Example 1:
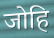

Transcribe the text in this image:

जोहि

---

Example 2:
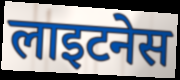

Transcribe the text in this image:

लाइटनेस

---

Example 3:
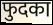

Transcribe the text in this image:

फुदका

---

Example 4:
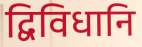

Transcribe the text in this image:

द्विविधानि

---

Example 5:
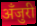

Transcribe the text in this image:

अँजुरी